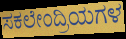
ಸಕಲೇಂದ್ರಿಯಗಳ